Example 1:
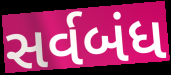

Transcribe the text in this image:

સર્વબંધ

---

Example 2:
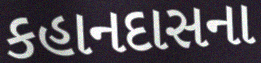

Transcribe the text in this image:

કહાનદાસના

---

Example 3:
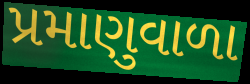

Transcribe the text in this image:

પ્રમાણુવાળા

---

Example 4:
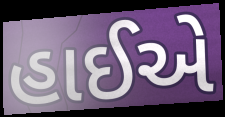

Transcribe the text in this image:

હાઈએ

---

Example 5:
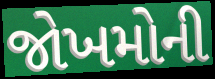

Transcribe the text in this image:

જોખમોની